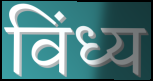
विंध्य